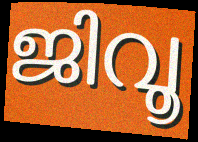
ജിവൂ